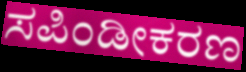
ಸಪಿಂಡೀಕರಣ